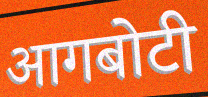
आगबोटी